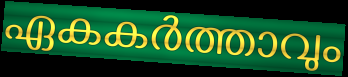
ഏകകർത്താവും